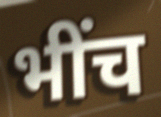
भींच